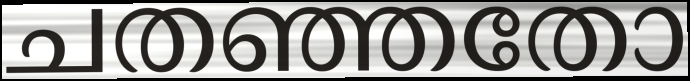
ചതഞ്ഞതോ